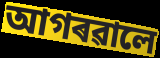
আগৰৱালে